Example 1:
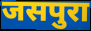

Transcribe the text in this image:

जसपुरा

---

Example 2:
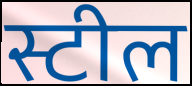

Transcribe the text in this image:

स्‍टील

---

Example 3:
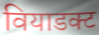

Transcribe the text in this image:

वियाडक्ट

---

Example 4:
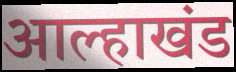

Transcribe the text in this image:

आल्हाखंड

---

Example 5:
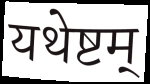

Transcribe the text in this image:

यथेष्टम्